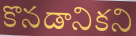
కొనడానికని